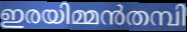
ഇരയിമ്മൻതമ്പി